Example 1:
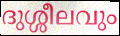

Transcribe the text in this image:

ദുശ്ശീലവും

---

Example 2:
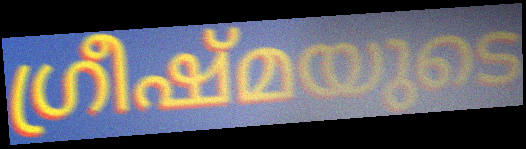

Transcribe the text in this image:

ഗ്രീഷ്മയുടെ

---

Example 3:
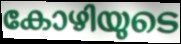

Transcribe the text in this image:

കോഴിയുടെ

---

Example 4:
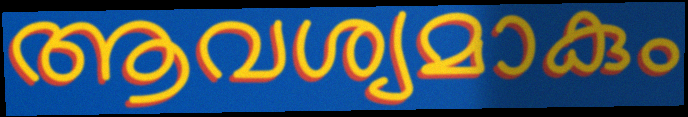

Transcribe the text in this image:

ആവശ്യമാകും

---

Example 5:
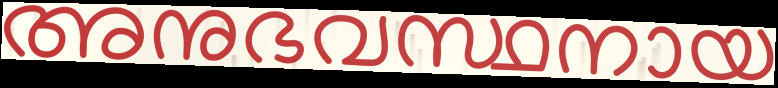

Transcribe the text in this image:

അനുഭവസ്ഥനായ